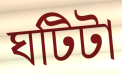
ঘটিটা